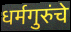
धर्मगुरुंचे